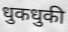
धुकधुकी